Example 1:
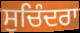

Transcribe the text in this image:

ਸੁਚਿੰਦਰਾ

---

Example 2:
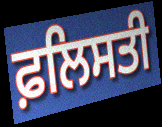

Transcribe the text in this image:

ਫ਼ਲਿਸਤੀ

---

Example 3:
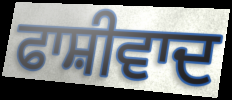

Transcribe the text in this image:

ਫਾਸ਼ੀਵਾਦ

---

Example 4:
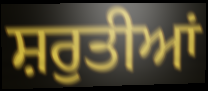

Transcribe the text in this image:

ਸ਼ਰੁਤੀਆਂ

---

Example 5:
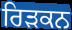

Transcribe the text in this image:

ਰਿੜਕਨ